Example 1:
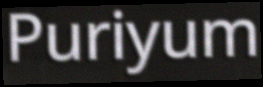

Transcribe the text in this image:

Puriyum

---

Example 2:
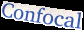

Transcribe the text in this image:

Confocal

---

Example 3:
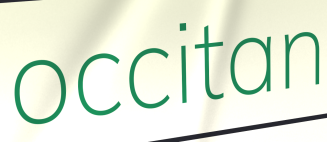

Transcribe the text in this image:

occitan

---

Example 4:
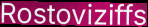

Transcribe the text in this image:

Rostoviziffs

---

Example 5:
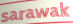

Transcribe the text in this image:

sarawak